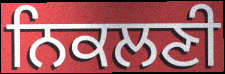
ਨਿਕਲਣੀ